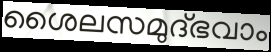
ശൈലസമുദ്ഭവാം